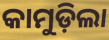
କାମୁଡ଼ିଲା